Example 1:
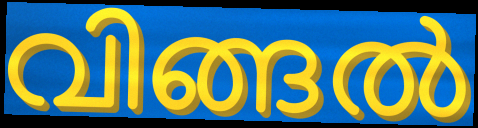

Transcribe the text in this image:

വിങ്ങൽ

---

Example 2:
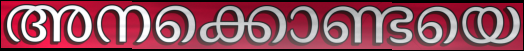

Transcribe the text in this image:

അനക്കൊണ്ടയെ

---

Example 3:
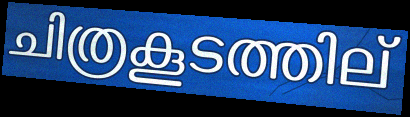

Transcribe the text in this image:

ചിത്രകൂടത്തില്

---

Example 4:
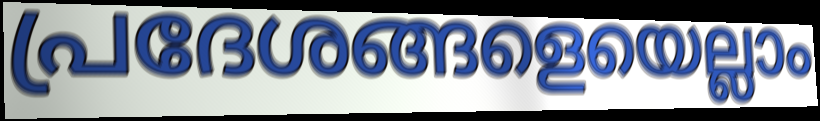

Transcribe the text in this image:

പ്രദേശങ്ങളെയെല്ലാം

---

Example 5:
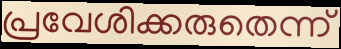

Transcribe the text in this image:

പ്രവേശിക്കരുതെന്ന്